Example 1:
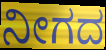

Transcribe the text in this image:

ನೀಗದ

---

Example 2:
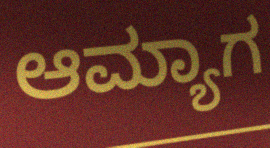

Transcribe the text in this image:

ಆಮ್ಯಾಗ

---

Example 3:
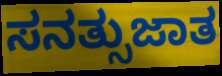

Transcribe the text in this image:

ಸನತ್ಸುಜಾತ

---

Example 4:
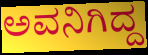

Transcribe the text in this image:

ಅವನಿಗಿದ್ದ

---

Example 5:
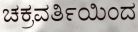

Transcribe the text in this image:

ಚಕ್ರವರ್ತಿಯಿಂದ